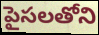
పైసలతోని